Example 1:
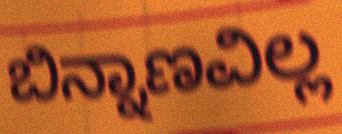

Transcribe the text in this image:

ಬಿನ್ನಾಣವಿಲ್ಲ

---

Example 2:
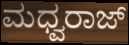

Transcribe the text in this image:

ಮಧ್ವರಾಜ್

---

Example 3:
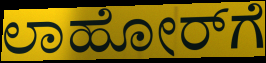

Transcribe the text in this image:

ಲಾಹೋರ್‌ಗೆ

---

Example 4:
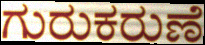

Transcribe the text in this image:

ಗುರುಕರುಣೆ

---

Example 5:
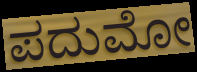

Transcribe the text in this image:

ಪದುಮೋ